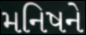
મનિષને